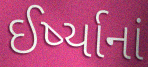
ઈર્ષ્યાનાં